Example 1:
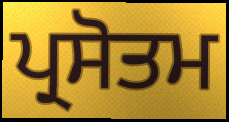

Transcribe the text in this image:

ਪ੍ਰਸੋਤਮ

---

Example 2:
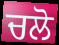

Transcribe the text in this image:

ਚਲੋ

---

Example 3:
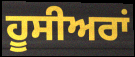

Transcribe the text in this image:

ਹੂਸੀਅਰਾਂ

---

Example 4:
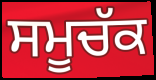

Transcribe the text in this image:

ਸਮੂਚੱਕ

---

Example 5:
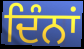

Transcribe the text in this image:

ਦਿੰਨਾਂ